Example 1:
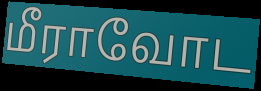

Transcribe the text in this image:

மீராவோட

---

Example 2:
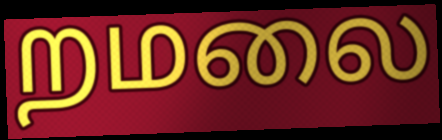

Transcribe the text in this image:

றமலை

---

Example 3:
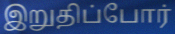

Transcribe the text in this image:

இறுதிப்போர்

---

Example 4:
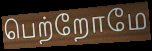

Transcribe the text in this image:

பெற்றோமே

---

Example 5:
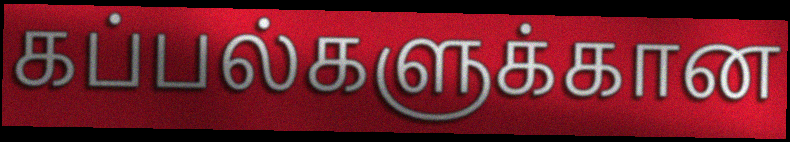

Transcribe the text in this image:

கப்பல்களுக்கான